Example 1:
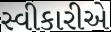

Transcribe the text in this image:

સ્વીકારીએ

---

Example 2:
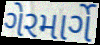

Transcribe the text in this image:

ગેરમાર્ગે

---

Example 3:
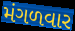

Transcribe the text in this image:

મંગળવાર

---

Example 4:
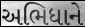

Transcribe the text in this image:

અભિધાને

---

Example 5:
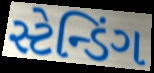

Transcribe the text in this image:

સ્ટેન્ડિંગ